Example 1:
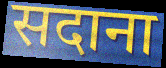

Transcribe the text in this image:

सदाना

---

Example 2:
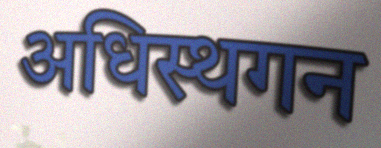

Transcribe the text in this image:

अधिस्थगन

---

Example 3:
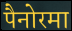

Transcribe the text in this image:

पैनोरमा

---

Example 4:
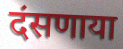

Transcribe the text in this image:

दंसणाया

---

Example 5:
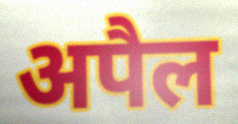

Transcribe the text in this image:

अपैल